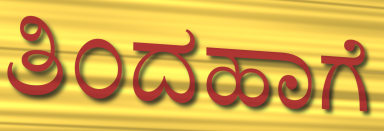
ತಿಂದಹಾಗೆ